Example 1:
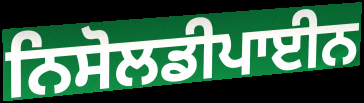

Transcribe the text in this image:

ਨਿਸੋਲਡੀਪਾਈਨ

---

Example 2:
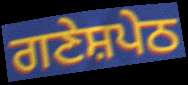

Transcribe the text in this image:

ਗਣੇਸ਼ਪੇਠ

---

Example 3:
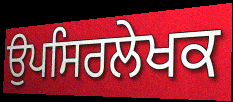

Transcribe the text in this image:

ਉਪਸਿਰਲੇਖਕ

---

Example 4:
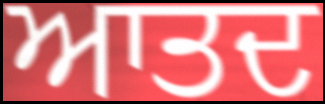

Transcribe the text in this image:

ਆਤਦ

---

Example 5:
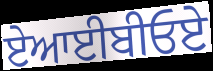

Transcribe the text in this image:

ਏਆਈਬੀਓਏ